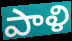
పాళి